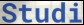
Studi